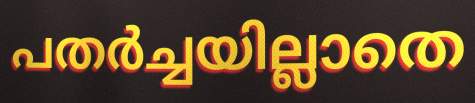
പതർച്ചയില്ലാതെ